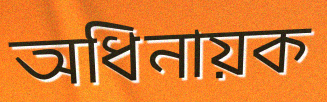
অধিনায়ক